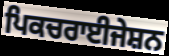
ਪਿਕਚਰਾਈਜੇਸ਼ਨ